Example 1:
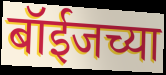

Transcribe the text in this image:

बॉईजच्या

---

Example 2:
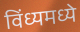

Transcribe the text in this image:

विंध्यमध्ये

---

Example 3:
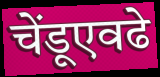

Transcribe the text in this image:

चेंडूएवढे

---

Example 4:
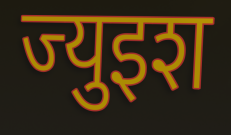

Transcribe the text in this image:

ज्युइश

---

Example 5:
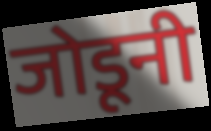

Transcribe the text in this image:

जोडूनी